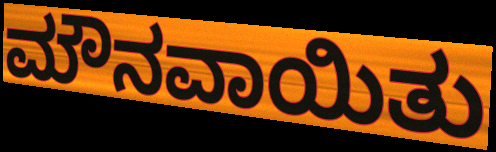
ಮೌನವಾಯಿತು